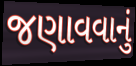
જણાવવાનું